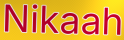
Nikaah